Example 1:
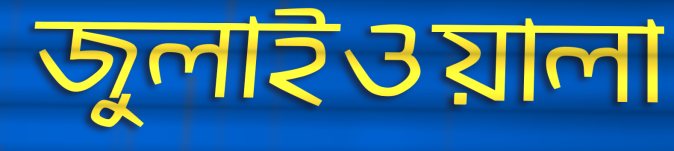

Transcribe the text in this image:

জুলাইওয়ালা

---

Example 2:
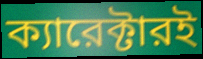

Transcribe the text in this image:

ক্যারেক্টারই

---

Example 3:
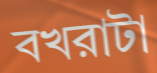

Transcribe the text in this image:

বখরাটা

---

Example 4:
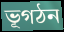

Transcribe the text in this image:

ভূগঠন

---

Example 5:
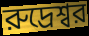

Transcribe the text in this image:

রুদ্রেশ্বর